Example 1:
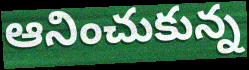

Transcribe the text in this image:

ఆనించుకున్న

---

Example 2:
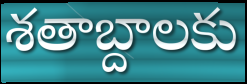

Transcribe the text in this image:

శతాబ్దాలకు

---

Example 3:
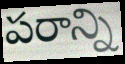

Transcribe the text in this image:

పరాన్ని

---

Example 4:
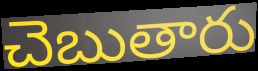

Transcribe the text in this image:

చెబుతారు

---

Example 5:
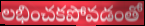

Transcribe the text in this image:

లభించకపోవడంతో